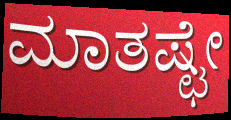
ಮಾತಷ್ಟೇ